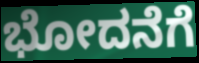
ಭೋದನೆಗೆ